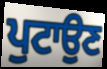
ਪੁਟਾਉਣ